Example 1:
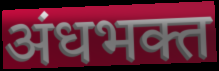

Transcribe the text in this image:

अंधभक्त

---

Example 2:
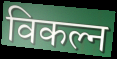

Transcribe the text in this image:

विकल्न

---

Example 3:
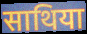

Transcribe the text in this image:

साथिया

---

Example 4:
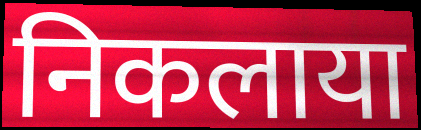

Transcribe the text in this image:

निकलाया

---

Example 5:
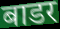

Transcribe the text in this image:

बाडर